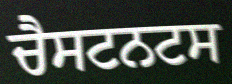
ਚੈਸਟਨਟਸ